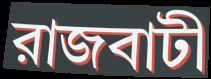
রাজবাটী